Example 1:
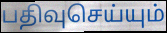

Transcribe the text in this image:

பதிவுசெய்யும்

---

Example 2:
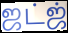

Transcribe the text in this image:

ஜட்ஜ்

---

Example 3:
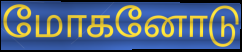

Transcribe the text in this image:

மோகனோடு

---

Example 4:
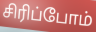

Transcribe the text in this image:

சிரிப்போம்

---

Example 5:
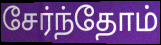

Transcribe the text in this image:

சேர்ந்தோம்